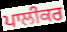
ਪਾਲੀਕਰ